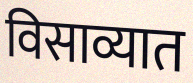
विसाव्यात